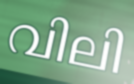
വിലി